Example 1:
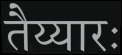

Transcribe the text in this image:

तैय्यारः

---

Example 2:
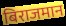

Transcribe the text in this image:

बिराजमान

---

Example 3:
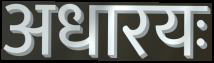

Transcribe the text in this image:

अधारयः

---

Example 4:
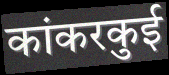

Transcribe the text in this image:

कांकरकुई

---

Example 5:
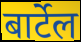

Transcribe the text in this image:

बार्टेल